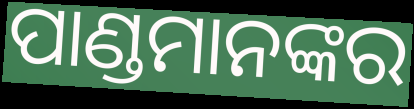
ପାଣ୍ଡମାନଙ୍କର